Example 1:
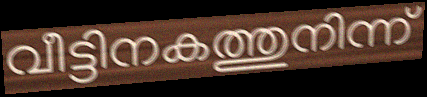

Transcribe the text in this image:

വീട്ടിനകത്തുനിന്ന്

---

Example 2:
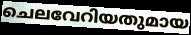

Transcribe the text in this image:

ചെലവേറിയതുമായ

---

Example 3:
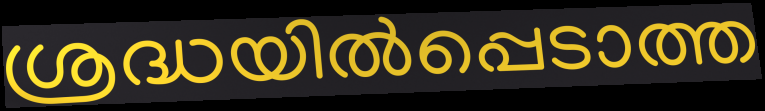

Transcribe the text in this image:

ശ്രദ്ധയിൽപ്പെടാത്ത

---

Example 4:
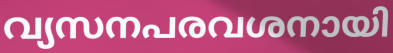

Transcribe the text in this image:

വ്യസനപരവശനായി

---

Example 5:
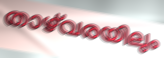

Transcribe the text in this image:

താഴ്‌വരയിലും